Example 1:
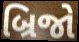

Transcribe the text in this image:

બ્રિજો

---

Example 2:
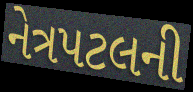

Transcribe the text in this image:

નેત્રપટલની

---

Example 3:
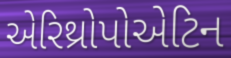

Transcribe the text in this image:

એરિથ્રોપોએટિન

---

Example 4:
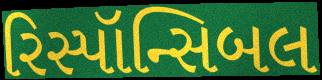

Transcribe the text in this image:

રિસ્પૉન્સિબલ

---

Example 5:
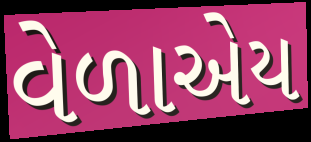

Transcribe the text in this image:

વેળાએય